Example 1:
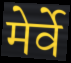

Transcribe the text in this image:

मेर्वे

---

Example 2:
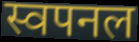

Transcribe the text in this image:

स्वपनल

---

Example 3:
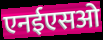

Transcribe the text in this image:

एनईएसओ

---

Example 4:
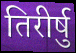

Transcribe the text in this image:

तिरीर्षु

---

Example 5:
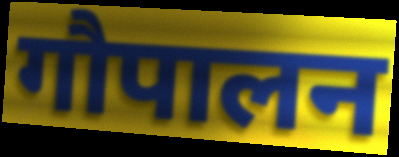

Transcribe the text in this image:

गौपालन